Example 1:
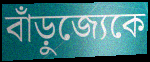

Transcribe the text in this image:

বাঁড়ুজ্যেকে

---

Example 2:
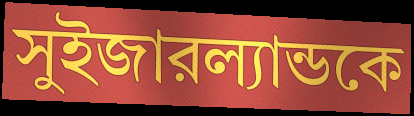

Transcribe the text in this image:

সুইজারল্যান্ডকে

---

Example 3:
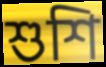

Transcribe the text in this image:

শুশি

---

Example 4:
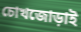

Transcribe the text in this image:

চোখজোড়াই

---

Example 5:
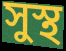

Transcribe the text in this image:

সুস্থ